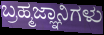
ಬ್ರಹ್ಮಜ್ಞಾನಿಗಳು